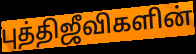
புத்திஜீவிகளின்